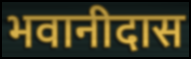
भवानीदास